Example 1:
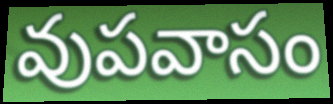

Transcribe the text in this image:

వుపవాసం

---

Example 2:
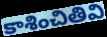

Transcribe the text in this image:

కాశించితివి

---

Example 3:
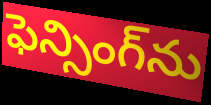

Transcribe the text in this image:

ఫెన్సింగ్‌ను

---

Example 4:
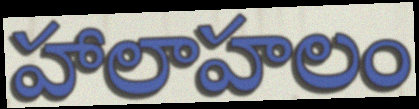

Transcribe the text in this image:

హాలాహలం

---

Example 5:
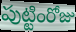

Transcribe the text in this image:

పుట్టింరోజు